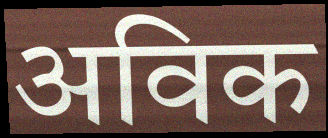
अविक